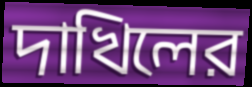
দাখিলের